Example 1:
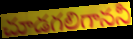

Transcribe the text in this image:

చూడగలిగాననీ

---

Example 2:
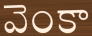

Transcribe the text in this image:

వెంకా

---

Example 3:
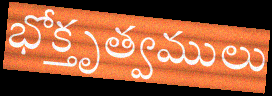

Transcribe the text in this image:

భోక్తృత్వములు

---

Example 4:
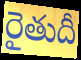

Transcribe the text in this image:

రైతుదీ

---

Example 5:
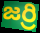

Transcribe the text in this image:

జర్రి